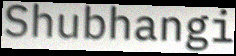
Shubhangi